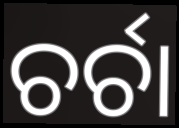
ଚର୍ଚା